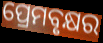
ପ୍ରେମବୃକ୍ଷର